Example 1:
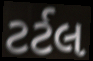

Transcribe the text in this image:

ટર્ટલ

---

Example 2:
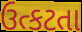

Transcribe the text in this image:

ઉત્કટતા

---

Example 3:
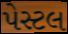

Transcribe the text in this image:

પેસ્ટલ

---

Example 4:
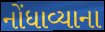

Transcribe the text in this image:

નોંધાવ્યાના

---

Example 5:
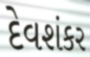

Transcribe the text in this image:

દેવશંકર